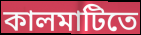
কালমাটিতে